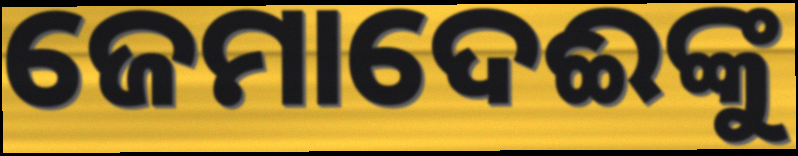
ଜେମାଦେଈଙ୍କୁ